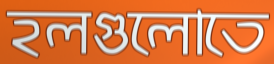
হলগুলোতে